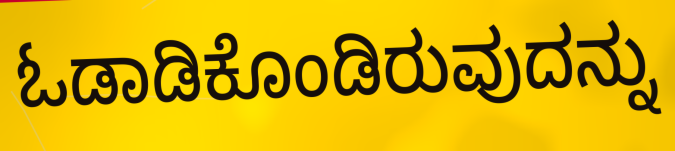
ಓಡಾಡಿಕೊಂಡಿರುವುದನ್ನು